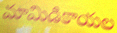
మామిడికాయల